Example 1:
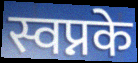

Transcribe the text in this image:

स्वप्नके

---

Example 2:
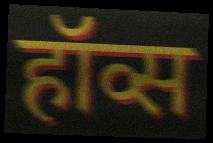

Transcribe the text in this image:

हॉव्स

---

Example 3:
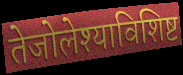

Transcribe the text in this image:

तेजोलेश्याविशिष्ट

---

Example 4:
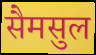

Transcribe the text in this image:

सैमसुल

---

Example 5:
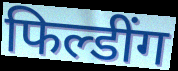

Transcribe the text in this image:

फिल्डींग